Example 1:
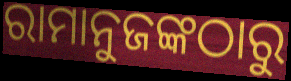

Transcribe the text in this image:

ରାମାନୁଜଙ୍କଠାରୁ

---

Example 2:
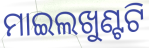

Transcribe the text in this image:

ମାଇଲଖୁଣ୍ଟଟି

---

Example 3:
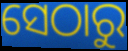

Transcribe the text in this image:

ସେଠାରୁ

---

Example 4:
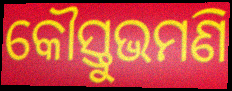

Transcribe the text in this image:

କୌସ୍ତୁଭମଣି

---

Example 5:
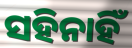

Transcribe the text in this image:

ସହିନାହିଁ